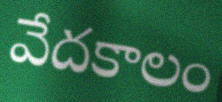
వేదకాలం